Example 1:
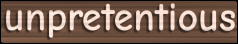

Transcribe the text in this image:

unpretentious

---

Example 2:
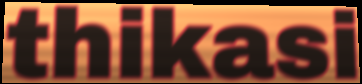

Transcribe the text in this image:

thikasi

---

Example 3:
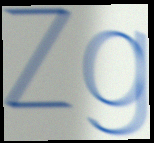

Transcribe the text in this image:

Zg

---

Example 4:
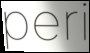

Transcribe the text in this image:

peri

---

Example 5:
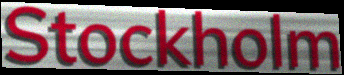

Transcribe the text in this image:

Stockholm